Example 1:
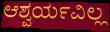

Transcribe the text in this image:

ಆಶ್ವರ್ಯವಿಲ್ಲ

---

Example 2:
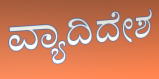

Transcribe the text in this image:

ವ್ಯಾದಿದೇಶ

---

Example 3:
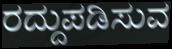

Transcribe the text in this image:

ರದ್ದುಪಡಿಸುವ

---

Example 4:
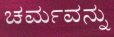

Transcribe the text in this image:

ಚರ್ಮವನ್ನು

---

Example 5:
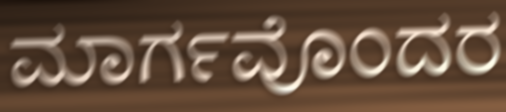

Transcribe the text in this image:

ಮಾರ್ಗವೊಂದರ